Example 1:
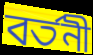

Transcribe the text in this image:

বর্তনী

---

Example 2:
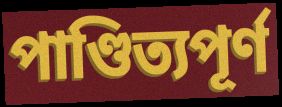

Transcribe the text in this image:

পাণ্ডিত্যপূর্ণ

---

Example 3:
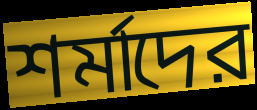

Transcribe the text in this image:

শর্মাদের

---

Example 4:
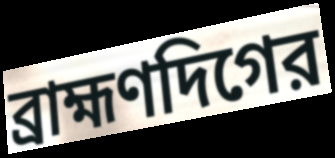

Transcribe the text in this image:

ব্রাহ্মণদিগের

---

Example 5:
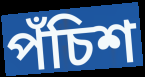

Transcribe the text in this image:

পঁচিশ